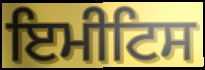
ਇਮੀਟਿਸ